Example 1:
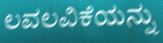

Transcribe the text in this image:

ಲವಲವಿಕೆಯನ್ನು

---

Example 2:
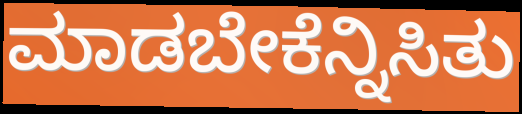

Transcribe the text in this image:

ಮಾಡಬೇಕೆನ್ನಿಸಿತು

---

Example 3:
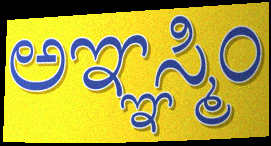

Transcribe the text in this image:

ಅಞ್ಞಸ್ಮಿಂ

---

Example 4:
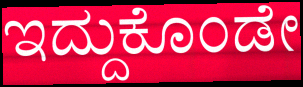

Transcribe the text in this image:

ಇದ್ದುಕೊಂಡೇ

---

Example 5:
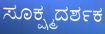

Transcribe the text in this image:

ಸೂಕ್ಷ್ಮದರ್ಶಕ